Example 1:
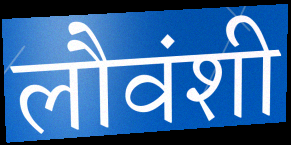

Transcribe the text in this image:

लौवंशी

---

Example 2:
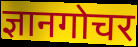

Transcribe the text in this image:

ज्ञानगोचर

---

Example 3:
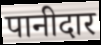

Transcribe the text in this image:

पानीदार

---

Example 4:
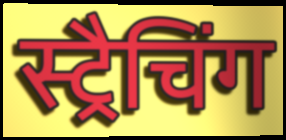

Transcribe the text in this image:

स्ट्रैचिंग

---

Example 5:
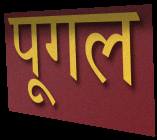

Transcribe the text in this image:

पूगल